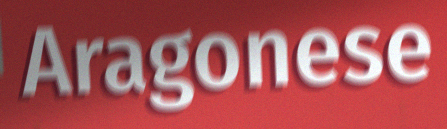
Aragonese